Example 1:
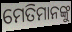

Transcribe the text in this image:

ମେତିମାନଙ୍କୁ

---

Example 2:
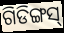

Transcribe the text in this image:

ଗିଡିଙ୍ଗସ୍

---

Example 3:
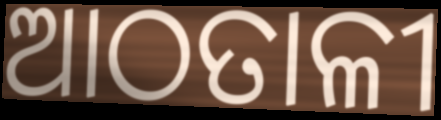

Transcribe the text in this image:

ଆଠତାଳୀ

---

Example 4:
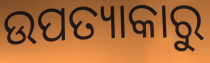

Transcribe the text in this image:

ଉପତ୍ୟାକାରୁ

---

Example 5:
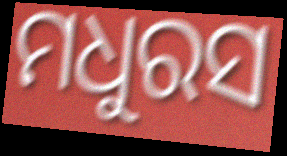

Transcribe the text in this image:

ମଧୁରସ